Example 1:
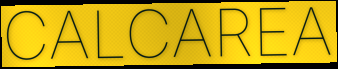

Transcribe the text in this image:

CALCAREA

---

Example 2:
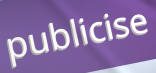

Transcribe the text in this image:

publicise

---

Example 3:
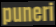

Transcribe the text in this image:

puneri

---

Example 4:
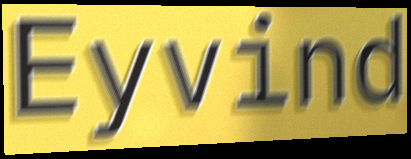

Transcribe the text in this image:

Eyvind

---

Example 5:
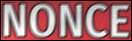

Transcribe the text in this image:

NONCE